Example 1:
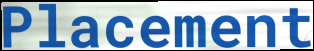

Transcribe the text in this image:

Placement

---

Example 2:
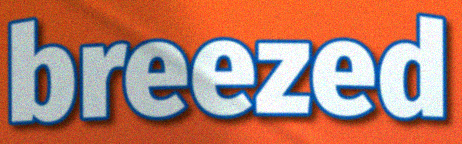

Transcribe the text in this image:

breezed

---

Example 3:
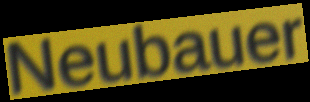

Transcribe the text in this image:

Neubauer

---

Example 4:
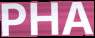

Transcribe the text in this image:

PHA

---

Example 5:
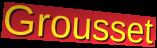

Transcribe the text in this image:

Grousset